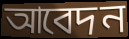
আবেদন